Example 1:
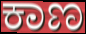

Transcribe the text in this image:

ಕಾಣ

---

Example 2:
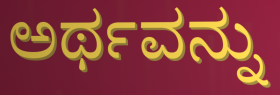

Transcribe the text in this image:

ಅರ್ಥವನ್ನು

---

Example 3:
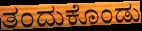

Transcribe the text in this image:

ತಂದುಕೊಂಡು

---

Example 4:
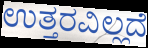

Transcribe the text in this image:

ಉತ್ತರವಿಲ್ಲದೆ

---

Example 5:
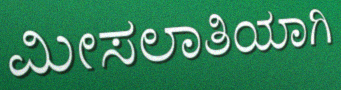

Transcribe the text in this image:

ಮೀಸಲಾತಿಯಾಗಿ